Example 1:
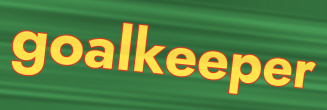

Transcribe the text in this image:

goalkeeper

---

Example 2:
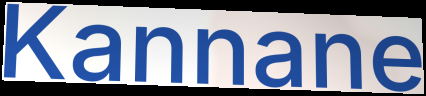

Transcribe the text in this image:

Kannane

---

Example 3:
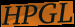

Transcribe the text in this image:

HPGL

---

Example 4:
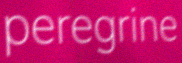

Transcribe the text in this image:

peregrine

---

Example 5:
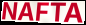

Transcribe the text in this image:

NAFTA